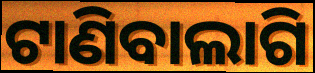
ଟାଣିବାଲାଗି